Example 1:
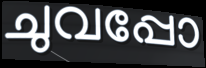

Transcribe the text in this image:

ചുവപ്പോ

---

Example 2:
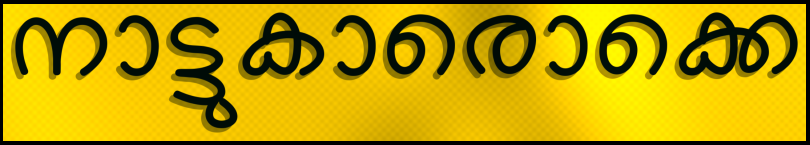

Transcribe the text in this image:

നാട്ടുകാരൊക്കെ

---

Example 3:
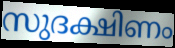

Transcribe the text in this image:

സുദക്ഷിണം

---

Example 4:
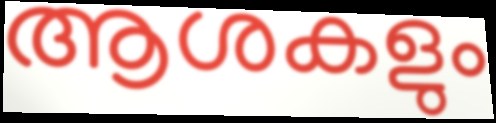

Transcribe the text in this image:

ആശകളും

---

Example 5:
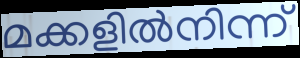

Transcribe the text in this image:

മക്കളിൽനിന്ന്